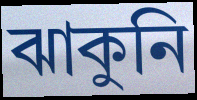
ঝাকুনি